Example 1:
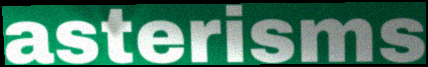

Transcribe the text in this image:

asterisms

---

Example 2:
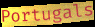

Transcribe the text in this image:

Portugals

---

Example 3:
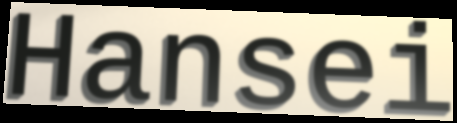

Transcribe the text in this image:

Hansei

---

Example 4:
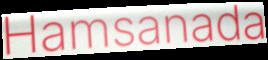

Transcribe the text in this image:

Hamsanada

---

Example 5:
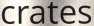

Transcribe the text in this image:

crates